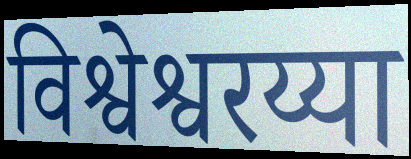
विश्वेश्वरय्या